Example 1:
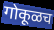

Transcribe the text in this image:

गोकूळच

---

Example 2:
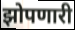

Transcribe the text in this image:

झोपणारी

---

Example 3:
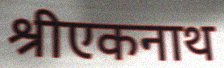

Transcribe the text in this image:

श्रीएकनाथ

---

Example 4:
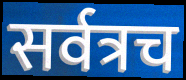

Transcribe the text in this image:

सर्वत्रच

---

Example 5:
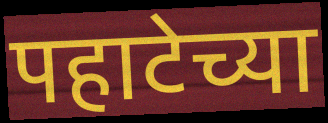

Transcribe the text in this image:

पहाटेच्या